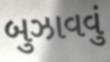
બુઝાવવું